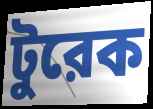
টুরেক